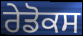
ਰੇਡੋਕਸ